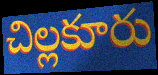
చిల్లకూరు